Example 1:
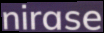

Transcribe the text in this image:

nirase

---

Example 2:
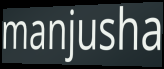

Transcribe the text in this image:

manjusha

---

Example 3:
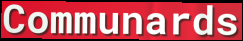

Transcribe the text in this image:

Communards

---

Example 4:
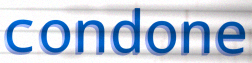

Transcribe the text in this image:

condone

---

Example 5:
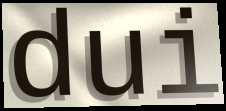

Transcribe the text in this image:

dui